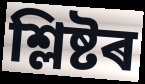
শ্লিষ্টৰ